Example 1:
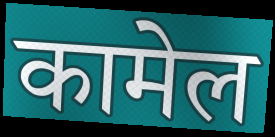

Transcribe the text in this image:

कामेल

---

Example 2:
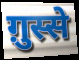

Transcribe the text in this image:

ग़ुस्से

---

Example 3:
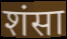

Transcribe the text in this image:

शंसा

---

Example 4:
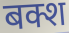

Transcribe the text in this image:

बक्श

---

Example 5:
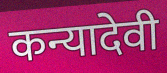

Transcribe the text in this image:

कन्यादेवी